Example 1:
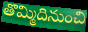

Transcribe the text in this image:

తొమ్మిదినుంచి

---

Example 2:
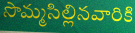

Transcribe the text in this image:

సొమ్మసిల్లినవారికి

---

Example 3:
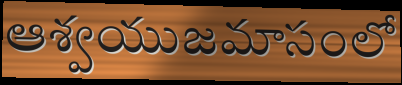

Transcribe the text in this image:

ఆశ్వయుజమాసంలో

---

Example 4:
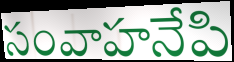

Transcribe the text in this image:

సంవాహనేపి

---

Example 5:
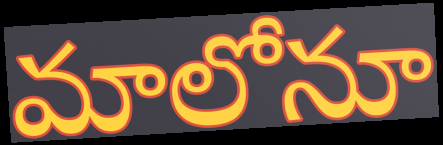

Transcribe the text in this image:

మాలోనూ